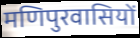
मणिपुरवासियों